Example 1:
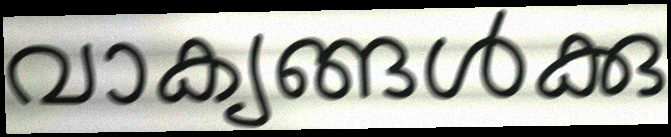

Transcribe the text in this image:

വാക്യങ്ങൾക്കു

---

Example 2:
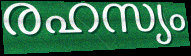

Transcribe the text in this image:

രഹസ്യം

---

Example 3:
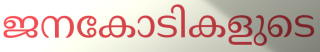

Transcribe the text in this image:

ജനകോടികളുടെ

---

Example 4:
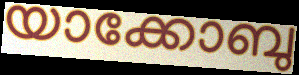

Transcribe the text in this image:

യാക്കോബു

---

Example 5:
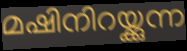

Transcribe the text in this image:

മഷിനിറയ്ക്കുന്ന